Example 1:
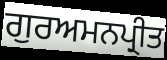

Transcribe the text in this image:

ਗੁਰਅਮਨਪ੍ਰੀਤ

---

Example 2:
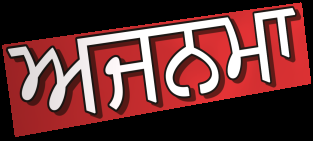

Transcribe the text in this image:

ਅਜਨਮਾ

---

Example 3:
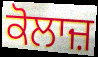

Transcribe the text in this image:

ਕੋਲਾਜ਼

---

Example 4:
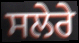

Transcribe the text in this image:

ਸਲੇਰੇ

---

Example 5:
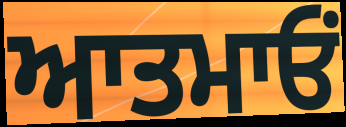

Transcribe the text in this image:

ਆਤਮਾਓਂ